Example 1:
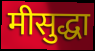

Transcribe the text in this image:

मीसुद्धा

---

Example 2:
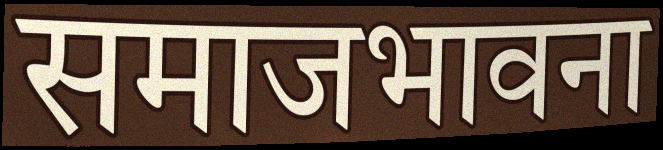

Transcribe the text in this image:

समाजभावना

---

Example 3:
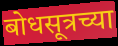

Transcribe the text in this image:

बोधसूत्रच्या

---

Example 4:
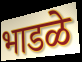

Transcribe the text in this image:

भाडळे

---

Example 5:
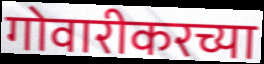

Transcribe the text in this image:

गोवारीकरच्या